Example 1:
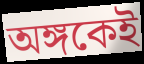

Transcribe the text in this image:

অঙ্গকেই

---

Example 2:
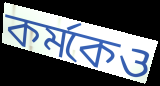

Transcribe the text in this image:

কর্মকেও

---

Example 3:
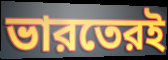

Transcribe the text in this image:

ভারতেরই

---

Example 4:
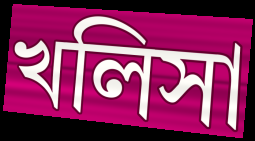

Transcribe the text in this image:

খলিসা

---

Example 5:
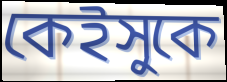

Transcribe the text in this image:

কেইসুকে